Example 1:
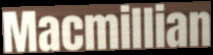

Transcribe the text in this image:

Macmillian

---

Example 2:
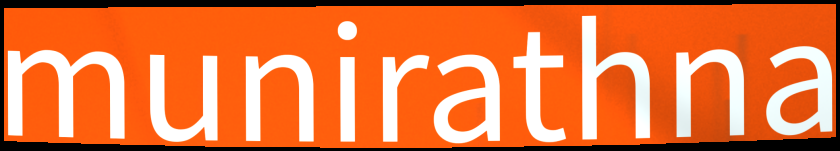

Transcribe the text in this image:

munirathna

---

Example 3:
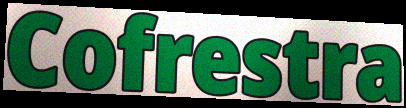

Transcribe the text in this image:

Cofrestra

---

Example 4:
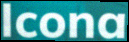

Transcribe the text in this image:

Icona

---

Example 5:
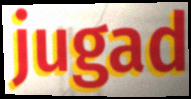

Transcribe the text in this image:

jugad